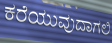
ಕರೆಯುವುದಾಗಲಿ